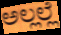
ಅಲ್ಲಲ್ಲೆ